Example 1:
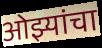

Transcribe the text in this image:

ओझ्यांचा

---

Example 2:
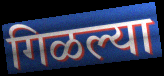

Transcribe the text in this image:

गिळल्या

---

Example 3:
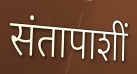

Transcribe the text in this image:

संतापाशीं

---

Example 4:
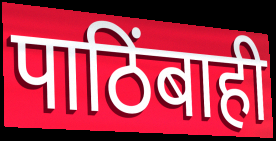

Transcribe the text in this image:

पाठिंबाही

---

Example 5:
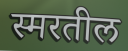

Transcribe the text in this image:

स्मरतील